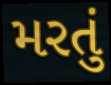
મરતું